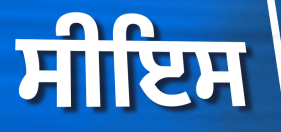
ਸੀਇਸ